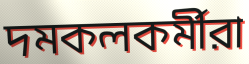
দমকলকর্মীরা